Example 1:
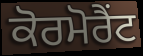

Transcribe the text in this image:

ਕੋਰਮੋਰੈਂਟ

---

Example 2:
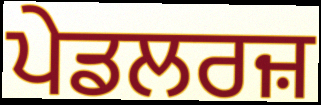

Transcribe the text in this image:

ਪੇਡਲਰਜ਼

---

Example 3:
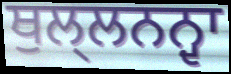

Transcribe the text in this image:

ਥੁਲ੍ਲਨਨ੍ਦਾ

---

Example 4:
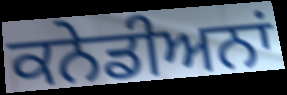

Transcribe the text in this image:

ਕਨੇਡੀਅਨਾਂ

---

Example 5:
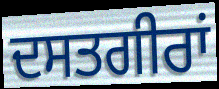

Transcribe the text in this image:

ਦਸਤਗੀਰਾਂ